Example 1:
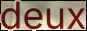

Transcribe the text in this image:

deux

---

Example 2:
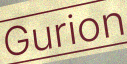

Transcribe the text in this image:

Gurion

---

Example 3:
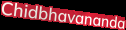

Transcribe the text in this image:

Chidbhavananda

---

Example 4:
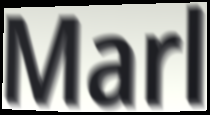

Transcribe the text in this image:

Marl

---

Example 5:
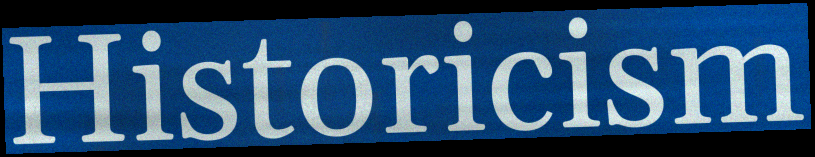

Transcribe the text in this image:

Historicism